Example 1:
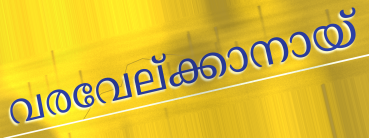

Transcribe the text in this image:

വരവേല്ക്കാനായ്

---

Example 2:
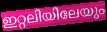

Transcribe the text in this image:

ഇറ്റലിയിലേയും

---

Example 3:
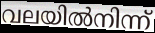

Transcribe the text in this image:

വലയിൽനിന്ന്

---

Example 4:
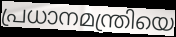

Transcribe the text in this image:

പ്രധാനമന്ത്രിയെ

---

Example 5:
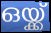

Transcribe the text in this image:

ഒയ്ക്ക്